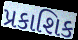
પ્રકાશિક